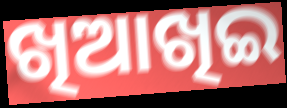
ଖିଆଖିଇ